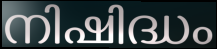
നിഷിദ്ധം